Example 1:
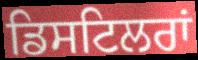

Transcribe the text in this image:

ਡਿਸਟਿਲਰਾਂ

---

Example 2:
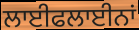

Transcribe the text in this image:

ਲਾਈਫਲਾਈਨਾਂ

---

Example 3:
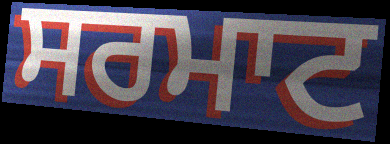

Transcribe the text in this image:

ਸਰਮਾਟ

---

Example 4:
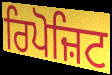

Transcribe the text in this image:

ਰਿਪੋਜ਼ਿਟ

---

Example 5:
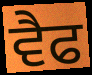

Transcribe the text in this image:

ਵੈਫ